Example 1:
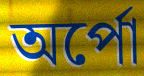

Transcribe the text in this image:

অর্পো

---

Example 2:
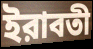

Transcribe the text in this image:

ইরাবতী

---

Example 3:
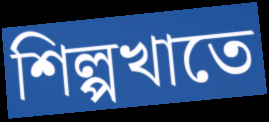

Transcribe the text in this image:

শিল্পখাতে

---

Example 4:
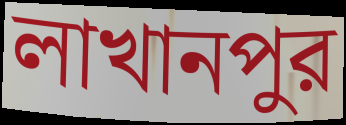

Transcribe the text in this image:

লাখানপুর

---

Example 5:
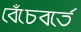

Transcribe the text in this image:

বেঁচেবর্তে